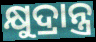
କ୍ଷୁଦ୍ରାନ୍ତ୍ର